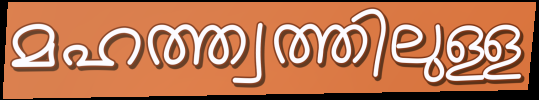
മഹത്ത്വത്തിലുള്ള